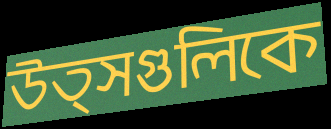
উত্সগুলিকে